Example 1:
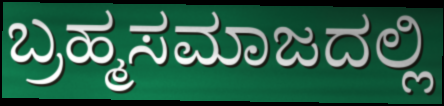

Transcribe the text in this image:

ಬ್ರಹ್ಮಸಮಾಜದಲ್ಲಿ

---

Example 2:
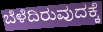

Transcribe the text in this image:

ಬೆಳೆದಿರುವುದಕ್ಕೆ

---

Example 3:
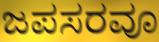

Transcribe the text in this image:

ಜಪಸರವೂ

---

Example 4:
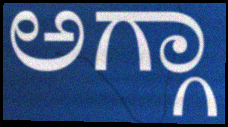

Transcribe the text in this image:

ಅಗ್ಗಾ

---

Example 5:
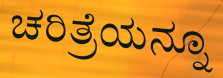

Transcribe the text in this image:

ಚರಿತ್ರೆಯನ್ನೂ